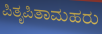
ಪಿತೃಪಿತಾಮಹರು